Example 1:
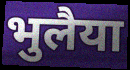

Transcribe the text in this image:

भुलैया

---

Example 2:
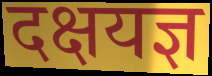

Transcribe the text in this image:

दक्षयज्ञ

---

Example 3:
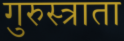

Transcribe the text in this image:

गुरुस्त्राता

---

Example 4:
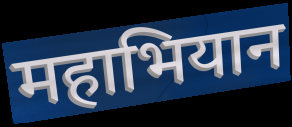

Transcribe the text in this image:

महाभियान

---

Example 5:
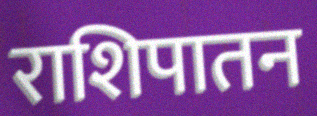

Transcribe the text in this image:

राशिपातन